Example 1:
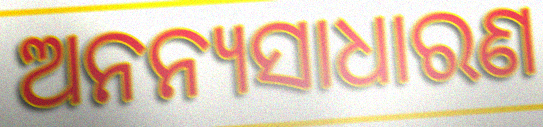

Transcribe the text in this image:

ଅନନ୍ୟସାଧାରଣ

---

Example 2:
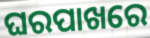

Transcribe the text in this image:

ଘରପାଖରେ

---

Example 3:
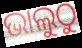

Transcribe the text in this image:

ଭାଲୁଠୁ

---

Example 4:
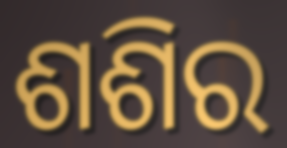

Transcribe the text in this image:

ଶଶିର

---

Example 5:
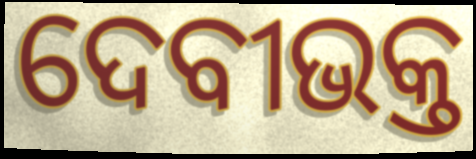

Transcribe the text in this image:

ଦେବୀଭକ୍ତ